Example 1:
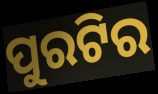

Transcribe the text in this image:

ପୁରଟିର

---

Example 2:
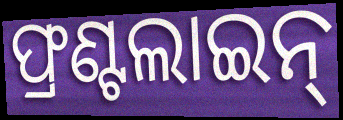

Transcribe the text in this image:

ଫ୍ରଣ୍ଟଲାଇନ୍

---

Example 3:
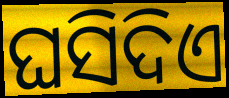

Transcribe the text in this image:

ଘସିଦିଏ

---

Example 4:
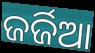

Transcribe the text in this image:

ଜର୍ଜିଆ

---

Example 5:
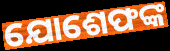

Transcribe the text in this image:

ଯୋଶେଫଙ୍କ